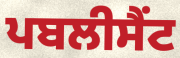
ਪਬਲੀਸੈਂਟ